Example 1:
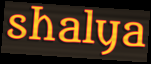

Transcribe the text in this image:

shalya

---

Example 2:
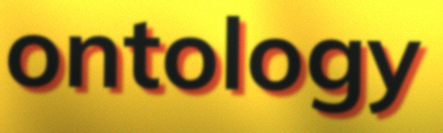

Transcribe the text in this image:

ontology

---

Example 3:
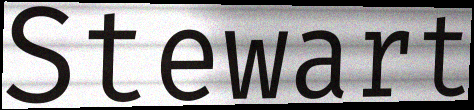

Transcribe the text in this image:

Stewart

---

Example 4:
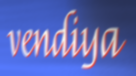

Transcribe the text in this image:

vendiya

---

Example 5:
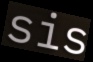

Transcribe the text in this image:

sis